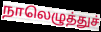
நாலெழுத்துச்